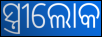
ସ୍ତ୍ରୀଲୋକ